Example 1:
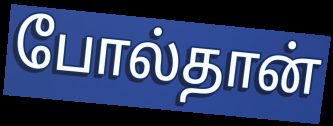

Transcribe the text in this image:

போல்தான்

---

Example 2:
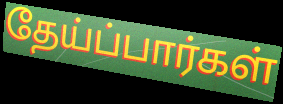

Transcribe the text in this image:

தேய்ப்பார்கள்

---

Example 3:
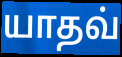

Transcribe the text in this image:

யாதவ்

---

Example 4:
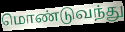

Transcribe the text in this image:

மொண்டுவந்து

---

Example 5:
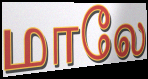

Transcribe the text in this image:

மாலே